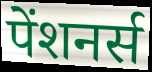
पेंशनर्स